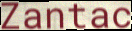
Zantac